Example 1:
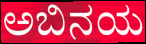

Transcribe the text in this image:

ಅಬಿನಯ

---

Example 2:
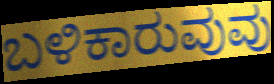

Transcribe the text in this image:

ಬಳಿಕಾರುವುವು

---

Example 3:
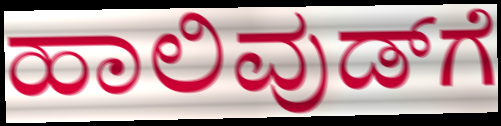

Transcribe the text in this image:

ಹಾಲಿವುಡ್‌ಗೆ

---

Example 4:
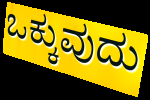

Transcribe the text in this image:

ಒಕ್ಕುವುದು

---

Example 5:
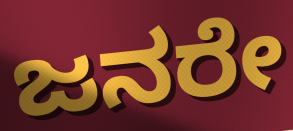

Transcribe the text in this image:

ಜನರೇ